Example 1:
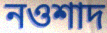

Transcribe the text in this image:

নওশাদ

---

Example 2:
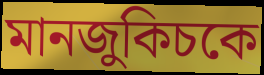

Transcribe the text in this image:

মানজুকিচকে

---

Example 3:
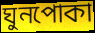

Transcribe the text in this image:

ঘুনপোকা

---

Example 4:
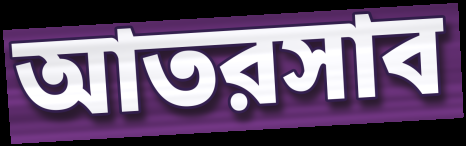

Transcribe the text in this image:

আতরসাব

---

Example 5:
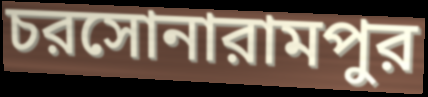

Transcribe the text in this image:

চরসোনারামপুর